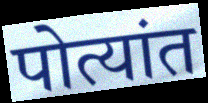
पोत्यांत